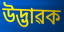
উদ্ভাৱক